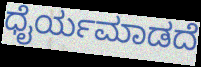
ಧೈರ್ಯಮಾಡದೆ